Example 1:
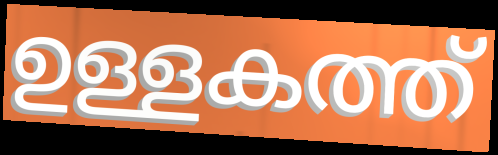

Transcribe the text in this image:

ഉള്ളകത്ത്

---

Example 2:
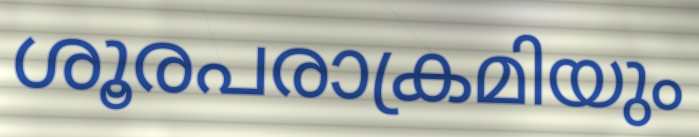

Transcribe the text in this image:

ശൂരപരാക്രമിയും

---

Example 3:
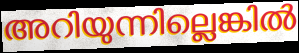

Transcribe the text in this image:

അറിയുന്നില്ലെങ്കിൽ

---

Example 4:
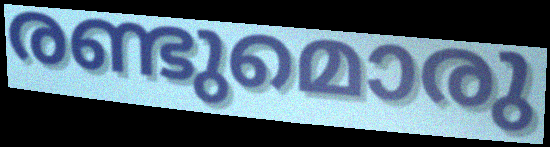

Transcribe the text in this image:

രണ്ടുമൊരു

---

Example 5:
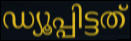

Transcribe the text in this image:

ഡ്യൂപ്പിട്ടത്